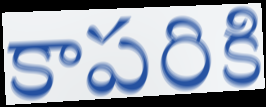
కాపరికి